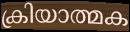
ക്രിയാത്മക